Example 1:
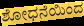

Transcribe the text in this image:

ಶೋಧನೆಯಿಂದ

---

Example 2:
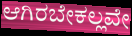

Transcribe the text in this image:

ಆಗಿರಬೇಕಲ್ಲವೇ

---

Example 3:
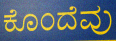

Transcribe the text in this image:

ಕೊಂದೆವು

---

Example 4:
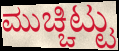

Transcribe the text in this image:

ಮುಚ್ಚಿಟ್ಟು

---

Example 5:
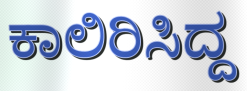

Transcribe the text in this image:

ಕಾಲಿರಿಸಿದ್ದ